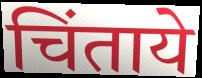
चिंताये